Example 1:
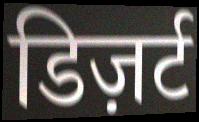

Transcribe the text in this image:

डिज़र्ट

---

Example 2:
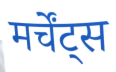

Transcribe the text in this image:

मर्चेंट्स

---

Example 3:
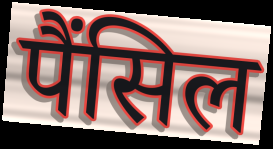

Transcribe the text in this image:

पैंसिल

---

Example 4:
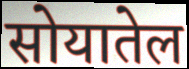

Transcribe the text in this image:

सोयातेल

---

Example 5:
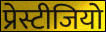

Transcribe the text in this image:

प्रेस्टीजियो